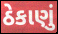
ઠેકાણું